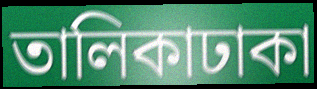
তালিকাঢাকা